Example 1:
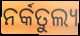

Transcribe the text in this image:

ନର୍କତୁଲ୍ୟ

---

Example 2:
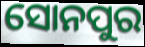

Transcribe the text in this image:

ସୋନପୁର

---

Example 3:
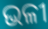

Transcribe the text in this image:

ଭଳୀ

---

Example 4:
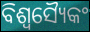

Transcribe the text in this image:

ବିଶ୍ୱସ୍ୟୈକଂ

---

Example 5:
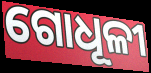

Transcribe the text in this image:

ଗୋଧୂଳୀ